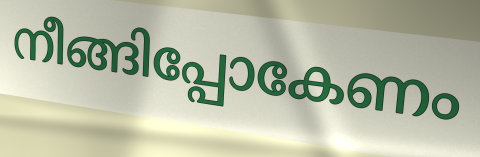
നീങ്ങിപ്പോകേണം